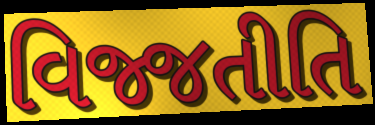
વિજ્જતીતિ